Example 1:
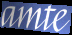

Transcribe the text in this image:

amte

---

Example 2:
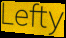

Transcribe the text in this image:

Lefty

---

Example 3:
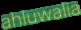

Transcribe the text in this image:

ahluwalia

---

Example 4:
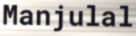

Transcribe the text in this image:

Manjulal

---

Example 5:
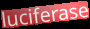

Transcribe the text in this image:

luciferase